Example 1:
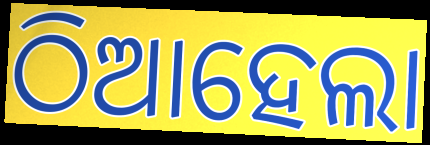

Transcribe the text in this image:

ଠିଆହେଲା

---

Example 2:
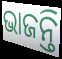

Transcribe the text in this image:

ଭାଜନ୍ତି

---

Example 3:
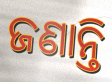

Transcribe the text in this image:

ଜଣାନ୍ତି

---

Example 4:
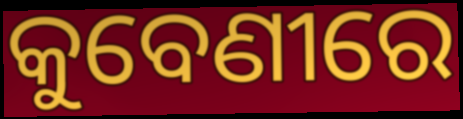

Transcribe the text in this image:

କୁବେଣୀରେ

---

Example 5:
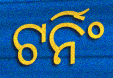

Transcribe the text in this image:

ଟର୍ନିଂ